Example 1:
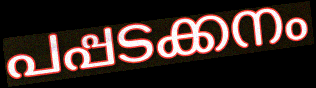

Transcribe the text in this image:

പപ്പടക്കനം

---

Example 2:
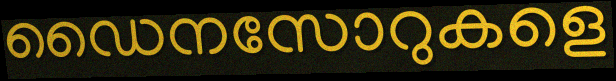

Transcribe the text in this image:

ഡൈനസോറുകളെ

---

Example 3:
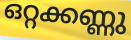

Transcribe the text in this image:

ഒറ്റക്കണ്ണു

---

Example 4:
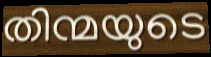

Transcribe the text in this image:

തിന്മയുടെ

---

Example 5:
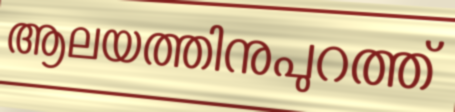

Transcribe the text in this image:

ആലയത്തിനുപുറത്ത്